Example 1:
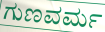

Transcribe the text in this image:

ಗುಣವರ್ಮ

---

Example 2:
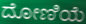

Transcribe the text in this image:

ದೋಣಿಯೆ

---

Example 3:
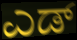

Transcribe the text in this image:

ಎಡ್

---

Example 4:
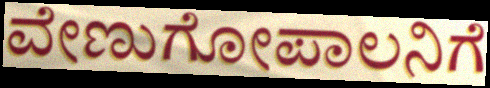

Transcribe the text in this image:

ವೇಣುಗೋಪಾಲನಿಗೆ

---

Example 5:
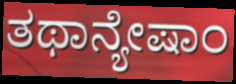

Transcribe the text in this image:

ತಥಾನ್ಯೇಷಾಂ